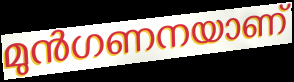
മുൻഗണനയാണ്